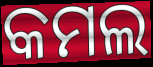
କମଲ